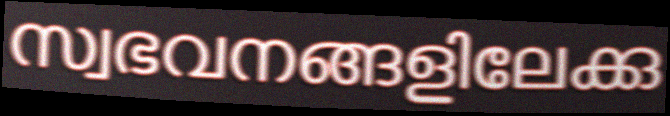
സ്വഭവനങ്ങളിലേക്കു